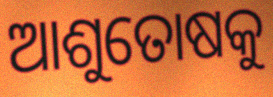
ଆଶୁତୋଷକୁ